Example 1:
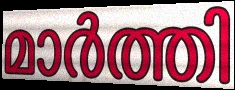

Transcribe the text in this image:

മാർത്തി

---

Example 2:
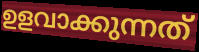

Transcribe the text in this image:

ഉളവാക്കുന്നത്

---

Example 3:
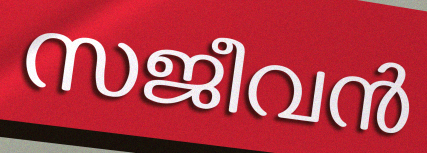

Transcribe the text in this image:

സജീവൻ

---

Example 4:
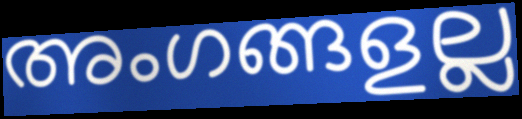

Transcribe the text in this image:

അംഗങ്ങളല്ല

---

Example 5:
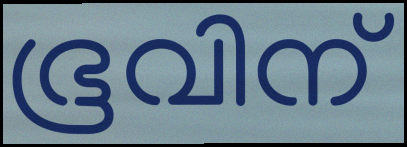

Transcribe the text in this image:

ഭൂവിന്